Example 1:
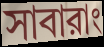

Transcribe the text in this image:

সাবারাং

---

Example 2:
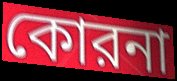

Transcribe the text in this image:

কোরনা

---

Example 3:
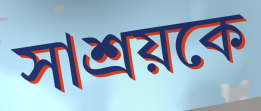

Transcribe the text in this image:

সাশ্রয়কে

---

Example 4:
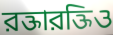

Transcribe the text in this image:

রক্তারক্তিও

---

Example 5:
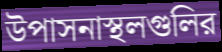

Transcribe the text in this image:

উপাসনাস্থলগুলির